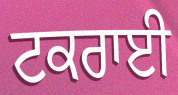
ਟਕਰਾਈ